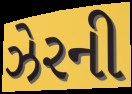
ઝેરની